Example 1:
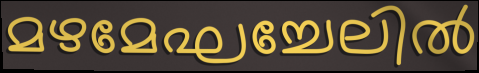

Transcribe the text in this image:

മഴമേഘച്ചേലിൽ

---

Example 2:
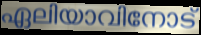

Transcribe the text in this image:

ഏലിയാവിനോട്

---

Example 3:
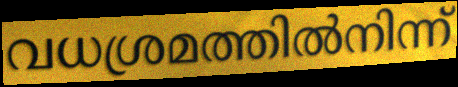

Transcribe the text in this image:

വധശ്രമത്തിൽനിന്ന്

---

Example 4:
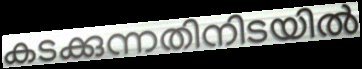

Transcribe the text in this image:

കടക്കുന്നതിനിടയിൽ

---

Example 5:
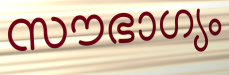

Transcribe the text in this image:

സൗഭാഗ്യം